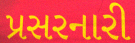
પ્રસરનારી